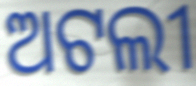
ଅଟଲୀ